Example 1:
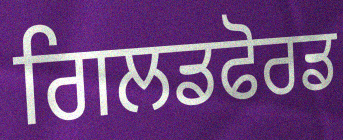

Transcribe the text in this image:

ਗਿਲਡਫੋਰਡ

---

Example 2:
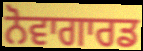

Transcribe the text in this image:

ਨੋਵਾਗਾਰਡ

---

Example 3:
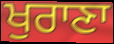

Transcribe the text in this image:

ਖੁਰਾਣਾ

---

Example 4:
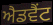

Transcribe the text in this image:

ਐਡਵੈਂਟ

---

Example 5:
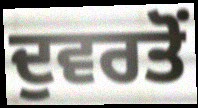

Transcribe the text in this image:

ਦੁਵਰਤੋਂ